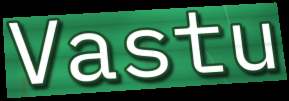
Vastu